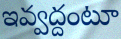
ఇవ్వద్దంటూ